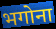
भगोना